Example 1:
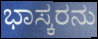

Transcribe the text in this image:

ಭಾಸ್ಕರನು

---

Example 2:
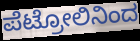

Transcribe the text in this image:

ಪೆಟ್ರೋಲಿನಿಂದ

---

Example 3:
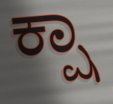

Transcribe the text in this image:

ಕ್ಷಾ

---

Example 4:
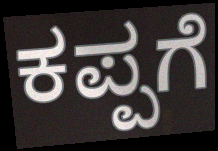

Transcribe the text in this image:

ಕಪ್ಪಗೆ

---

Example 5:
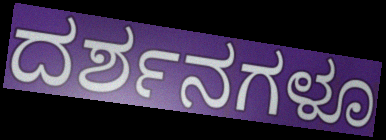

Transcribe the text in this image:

ದರ್ಶನಗಳೂ